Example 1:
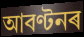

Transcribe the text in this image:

আবণ্টনৰ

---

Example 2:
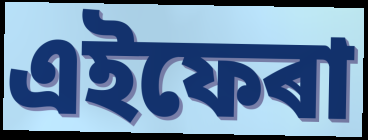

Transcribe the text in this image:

এইফেৰা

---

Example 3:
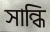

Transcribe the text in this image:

সান্ধি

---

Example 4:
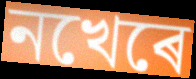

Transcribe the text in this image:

নখেৰে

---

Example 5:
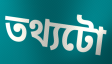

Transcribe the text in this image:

তথ্যটো